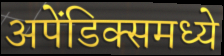
अपेंडिक्समध्ये